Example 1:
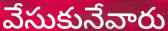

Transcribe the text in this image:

వేసుకునేవారు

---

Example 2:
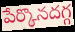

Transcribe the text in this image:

పేర్కొనదగ్గ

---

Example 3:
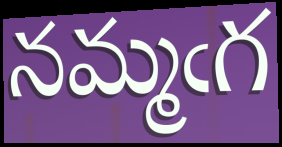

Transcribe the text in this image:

నమ్మఁగ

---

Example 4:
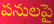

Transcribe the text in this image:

పనులపై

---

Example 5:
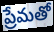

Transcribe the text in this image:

ప్రేమతో